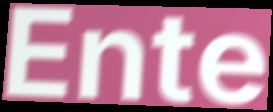
Ente